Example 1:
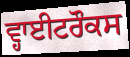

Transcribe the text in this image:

ਵ੍ਹਾਈਟਰੌਕਸ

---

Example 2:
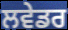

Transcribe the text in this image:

ਲਵੇਡਰ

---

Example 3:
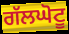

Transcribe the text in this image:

ਗੱਲਘੋਟੂ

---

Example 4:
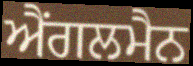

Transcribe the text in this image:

ਐਂਗਲਮੈਨ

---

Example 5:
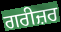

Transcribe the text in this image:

ਗਰੀਜ਼ਰ